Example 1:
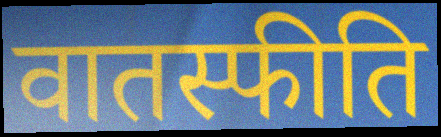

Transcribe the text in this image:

वातस्फीति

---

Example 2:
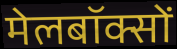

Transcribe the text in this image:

मेलबॉक्सों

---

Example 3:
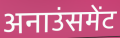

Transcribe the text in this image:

अनाउंसमेंट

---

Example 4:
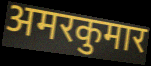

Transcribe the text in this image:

अमरकुमार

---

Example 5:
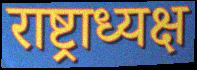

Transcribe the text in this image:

राष्ट्राध्यक्ष